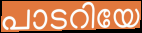
പാടറിയേ